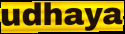
udhaya